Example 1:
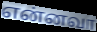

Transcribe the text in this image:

என்னவா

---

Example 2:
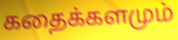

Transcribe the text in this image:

கதைக்களமும்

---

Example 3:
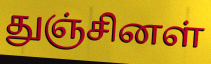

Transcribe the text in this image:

துஞ்சினள்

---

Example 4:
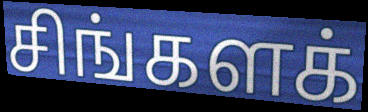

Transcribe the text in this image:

சிங்களக்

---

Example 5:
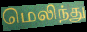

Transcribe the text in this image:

மெலிந்து